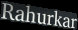
Rahurkar